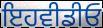
ਇਹਵੀਡੀਓ